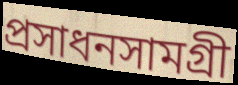
প্রসাধনসামগ্রী